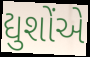
દ્યુશોંએ